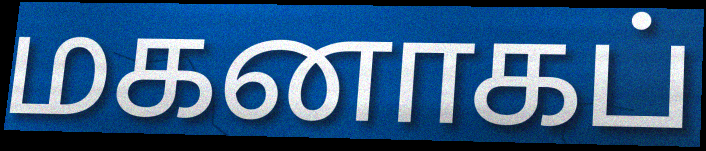
மகனாகப்